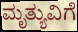
ಮೃತ್ಯುವಿಗೆ